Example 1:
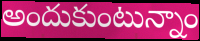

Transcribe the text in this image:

అందుకుంటున్నాం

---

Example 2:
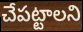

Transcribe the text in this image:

చేపట్టాలని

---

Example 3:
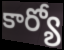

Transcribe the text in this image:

కార్యో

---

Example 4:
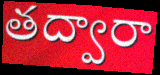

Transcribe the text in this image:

తద్వారా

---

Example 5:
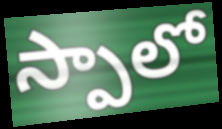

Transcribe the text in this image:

స్పాలో